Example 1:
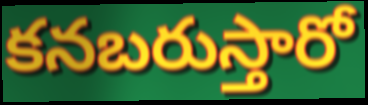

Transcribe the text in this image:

కనబరుస్తారో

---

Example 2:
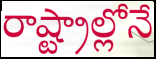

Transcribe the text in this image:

రాష్ట్రాల్లోనే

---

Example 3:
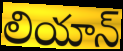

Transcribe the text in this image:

లియాన్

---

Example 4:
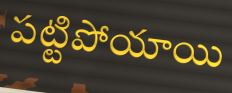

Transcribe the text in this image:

పట్టిపోయాయి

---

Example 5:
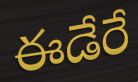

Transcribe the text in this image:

ఈడేరే